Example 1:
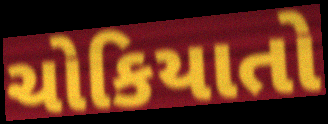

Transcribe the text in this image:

ચોકિયાતો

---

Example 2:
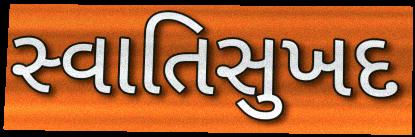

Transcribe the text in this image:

સ્વાતિસુખદ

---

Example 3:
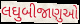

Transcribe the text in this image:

લઘુબીજાણુઓ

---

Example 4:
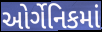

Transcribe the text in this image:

ઓર્ગેનિકમાં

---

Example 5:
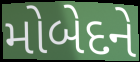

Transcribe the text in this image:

મોબેદને